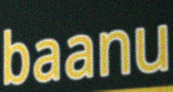
baanu